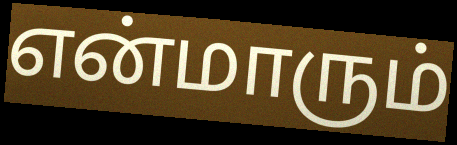
என்மாரும்